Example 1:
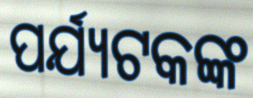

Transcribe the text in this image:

ପର୍ଯ୍ୟଟକଙ୍କ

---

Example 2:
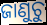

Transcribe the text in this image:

ଜାଣୁଚୁ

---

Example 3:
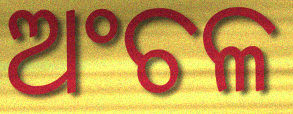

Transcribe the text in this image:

ଅଂଚଳ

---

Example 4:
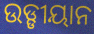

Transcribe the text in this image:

ଉଡ୍ଡୀୟାନ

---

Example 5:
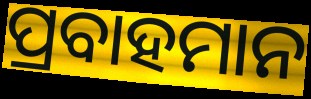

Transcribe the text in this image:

ପ୍ରବାହମାନ